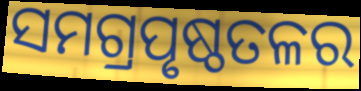
ସମଗ୍ରପୃଷ୍ଠତଳର